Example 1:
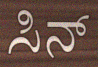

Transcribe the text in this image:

ಸಿನ್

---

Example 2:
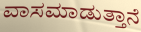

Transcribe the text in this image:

ವಾಸಮಾಡುತ್ತಾನೆ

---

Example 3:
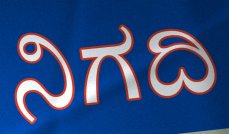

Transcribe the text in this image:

ನಿಗದಿ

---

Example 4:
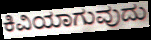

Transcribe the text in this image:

ಕಿವಿಯಾಗುವುದು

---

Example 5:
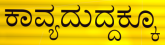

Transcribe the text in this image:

ಕಾವ್ಯದುದ್ದಕ್ಕೂ